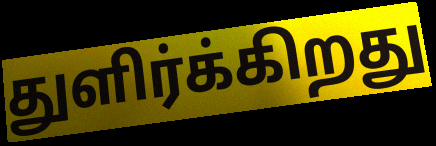
துளிர்க்கிறது